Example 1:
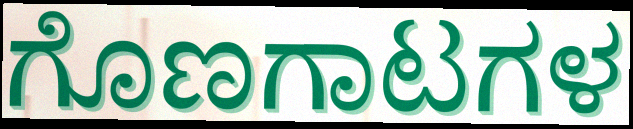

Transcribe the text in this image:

ಗೊಣಗಾಟಗಳ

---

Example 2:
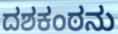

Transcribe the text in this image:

ದಶಕಂಠನು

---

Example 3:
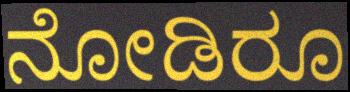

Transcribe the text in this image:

ನೋಡಿರೂ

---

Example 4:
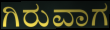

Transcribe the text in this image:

ಗಿರುವಾಗ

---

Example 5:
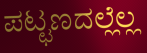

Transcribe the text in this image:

ಪಟ್ಟಣದಲ್ಲೆಲ್ಲ